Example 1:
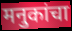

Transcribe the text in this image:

मनुकांचा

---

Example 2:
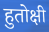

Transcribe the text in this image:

हुतोक्षी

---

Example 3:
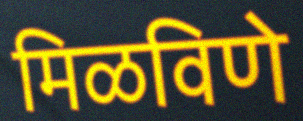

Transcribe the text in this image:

मिळविणे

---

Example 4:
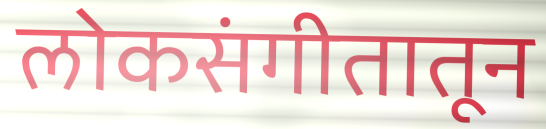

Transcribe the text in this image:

लोकसंगीतातून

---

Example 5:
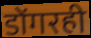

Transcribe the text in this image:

डोंगरही